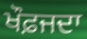
ਖੌਫ਼ਜਦਾ